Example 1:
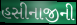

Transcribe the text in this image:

હસીનાજીની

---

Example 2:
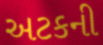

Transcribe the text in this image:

અટકની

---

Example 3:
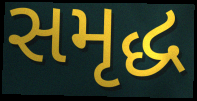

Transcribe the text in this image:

સમૃદ્ધ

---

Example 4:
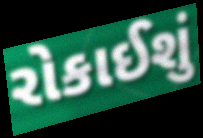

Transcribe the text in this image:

રોકાઈશું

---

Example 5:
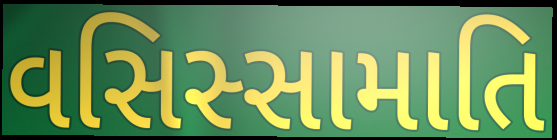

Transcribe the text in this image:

વસિસ્સામાતિ